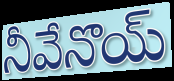
నీవేనొయ్